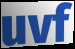
uvf